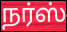
நர்ஸ்